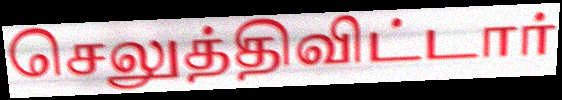
செலுத்திவிட்டார்